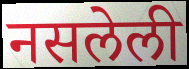
नसलेली